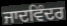
ਜਾਦਵਿੰਦਰ